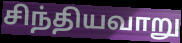
சிந்தியவாறு